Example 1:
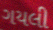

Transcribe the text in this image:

ગયલી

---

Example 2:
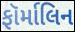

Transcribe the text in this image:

ફૉર્માલિન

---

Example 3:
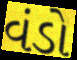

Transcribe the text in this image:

વંડો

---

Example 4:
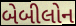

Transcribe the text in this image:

બેબીલોન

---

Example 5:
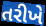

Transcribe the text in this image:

તરીખે